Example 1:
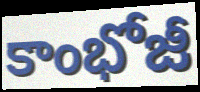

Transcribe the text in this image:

కాంభోజీ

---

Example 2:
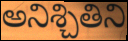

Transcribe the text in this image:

అనిశ్చితిని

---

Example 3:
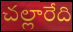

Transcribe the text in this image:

చల్లారేది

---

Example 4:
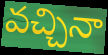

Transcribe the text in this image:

వచ్చినా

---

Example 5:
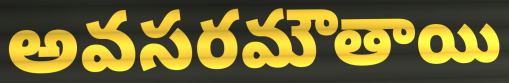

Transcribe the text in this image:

అవసరమౌతాయి